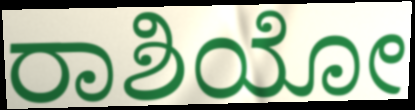
ರಾಶಿಯೋ